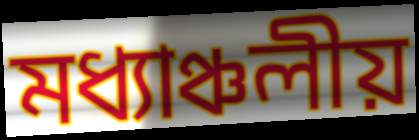
মধ্যাঞ্চলীয়